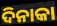
ଦିନାକା